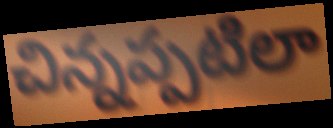
చిన్నప్పటిలా